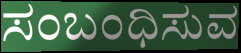
ಸಂಬಂಧಿಸುವ